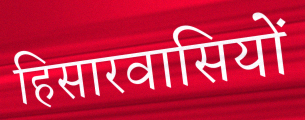
हिसारवासियों